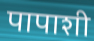
पापाशी